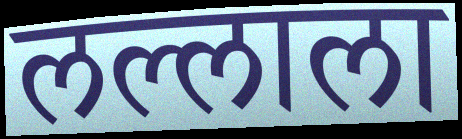
लल्लाला